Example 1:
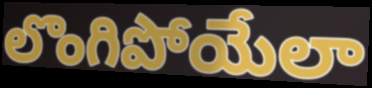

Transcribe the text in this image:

లొంగిపోయేలా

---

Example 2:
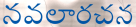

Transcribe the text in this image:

నవలారచన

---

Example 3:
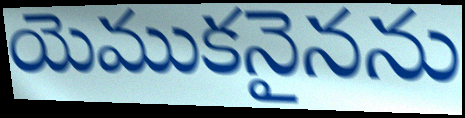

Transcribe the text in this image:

యెముకనైనను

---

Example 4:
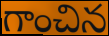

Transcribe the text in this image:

గాంచిన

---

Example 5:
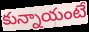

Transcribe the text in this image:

కున్నాయంటే